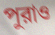
পুরাও